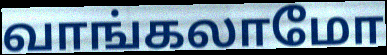
வாங்கலாமோ